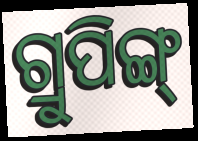
ଗ୍ରୁପିଙ୍ଗ୍